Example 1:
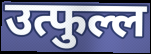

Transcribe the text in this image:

उत्फुल्ल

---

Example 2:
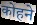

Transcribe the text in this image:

कोहने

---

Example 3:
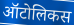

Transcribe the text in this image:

ऑटोलिकस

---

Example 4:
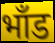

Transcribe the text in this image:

भाँड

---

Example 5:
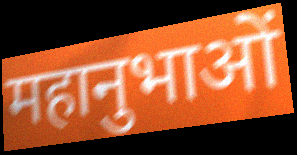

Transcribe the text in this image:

महानुभाओं